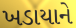
ખડાયાને